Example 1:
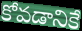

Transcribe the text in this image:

కోవడానికే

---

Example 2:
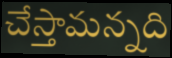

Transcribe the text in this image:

చేస్తామన్నది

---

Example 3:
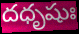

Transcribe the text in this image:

దధృషుః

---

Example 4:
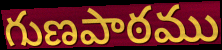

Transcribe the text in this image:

గుణపాఠము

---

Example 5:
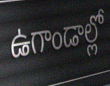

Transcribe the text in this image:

ఉగాండాల్లో